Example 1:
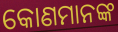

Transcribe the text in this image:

କୋଣମାନଙ୍କ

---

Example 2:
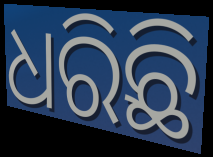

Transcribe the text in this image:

ଧରିଛି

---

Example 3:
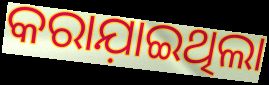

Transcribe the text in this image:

କରାଯ଼ାଇଥିଲା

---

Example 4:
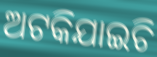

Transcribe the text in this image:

ଅଟକିଯାଇଚି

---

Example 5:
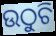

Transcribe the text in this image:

ଉଠୁଚି